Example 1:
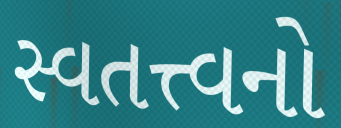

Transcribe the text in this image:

સ્વતત્ત્વનો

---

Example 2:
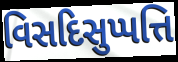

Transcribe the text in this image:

વિસદિસુપ્પત્તિ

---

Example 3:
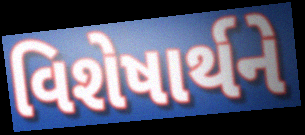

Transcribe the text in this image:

વિશેષાર્થને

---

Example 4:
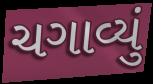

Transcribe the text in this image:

ચગાવ્યું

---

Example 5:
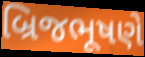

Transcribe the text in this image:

બ્રિજભૂષણે